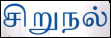
சிறுநல்